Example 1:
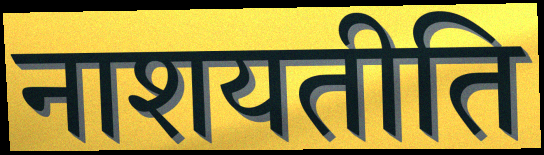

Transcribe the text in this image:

नाशयतीति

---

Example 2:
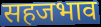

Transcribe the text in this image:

सहजभाव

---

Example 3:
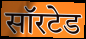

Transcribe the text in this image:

सॉरटेड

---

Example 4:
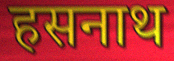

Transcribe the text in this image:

हसनाथ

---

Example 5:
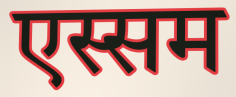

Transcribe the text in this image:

एस्सम